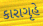
કારાગૃહે